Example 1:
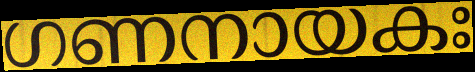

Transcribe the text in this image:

ഗണനായകഃ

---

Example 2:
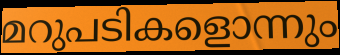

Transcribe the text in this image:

മറുപടികളൊന്നും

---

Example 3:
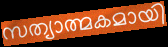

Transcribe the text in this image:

സത്യാത്മകമായി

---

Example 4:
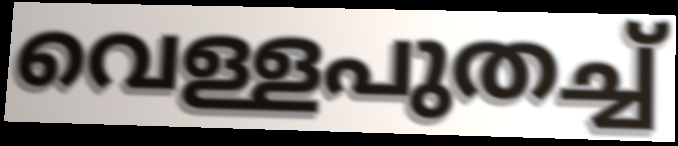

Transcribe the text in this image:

വെള്ളപുതച്ച്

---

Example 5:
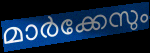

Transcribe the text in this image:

മാർക്കേസും